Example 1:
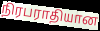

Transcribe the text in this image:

நிரபராதியான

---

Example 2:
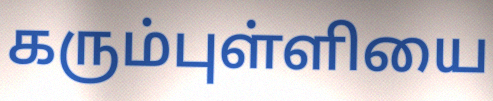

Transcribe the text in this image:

கரும்புள்ளியை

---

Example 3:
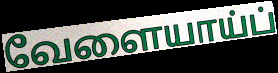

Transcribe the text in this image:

வேளையாய்ப்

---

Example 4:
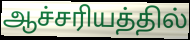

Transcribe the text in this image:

ஆச்சரியத்தில்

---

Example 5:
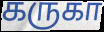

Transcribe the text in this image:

கருகா